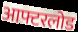
आफ्टरलोड